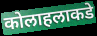
कोलाहलाकडे